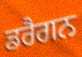
ਡਰੈਗਨ